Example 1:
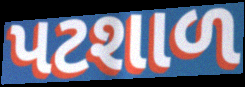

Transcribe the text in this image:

પટશાળ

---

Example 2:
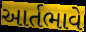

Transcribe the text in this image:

આર્તભાવે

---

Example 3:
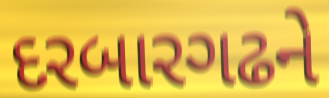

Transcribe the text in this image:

દરબારગઢને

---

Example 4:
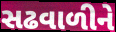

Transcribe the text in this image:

સઢવાળીને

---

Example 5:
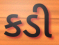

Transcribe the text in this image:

કડી